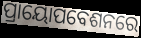
ପ୍ରାୟୋପବେଶନରେ